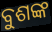
ବୁଶଙ୍କ